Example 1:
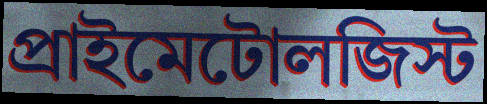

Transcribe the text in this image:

প্রাইমেটোলজিস্ট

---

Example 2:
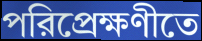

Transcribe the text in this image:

পরিপ্রেক্ষণীতে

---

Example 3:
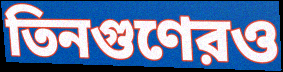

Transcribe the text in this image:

তিনগুণেরও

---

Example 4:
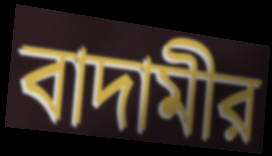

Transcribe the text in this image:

বাদামীর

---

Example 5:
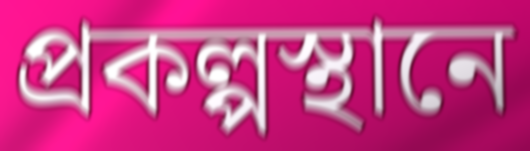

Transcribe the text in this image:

প্রকল্পস্থানে